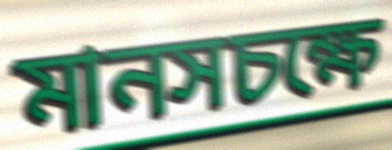
মানসচক্ষে